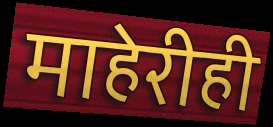
माहेरीही